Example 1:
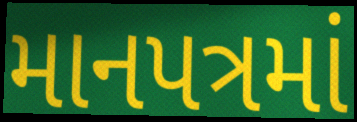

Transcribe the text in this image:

માનપત્રમાં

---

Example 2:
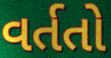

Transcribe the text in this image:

વર્તતો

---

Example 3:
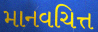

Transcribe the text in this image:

માનવચિત્ત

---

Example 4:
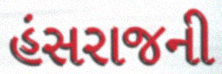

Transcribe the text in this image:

હંસરાજની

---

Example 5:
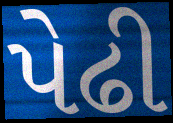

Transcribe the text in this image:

પેઢી